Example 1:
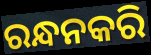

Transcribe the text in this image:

ରନ୍ଧନକରି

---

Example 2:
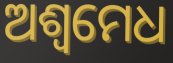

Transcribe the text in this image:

ଅଶ୍ୱମେଧ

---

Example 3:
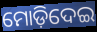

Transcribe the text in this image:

ମୋଡ଼ିଦେଇ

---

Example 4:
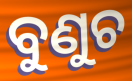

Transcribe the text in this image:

ବୁଣୁଚ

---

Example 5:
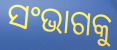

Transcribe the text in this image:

ସଂଭାଗକୁ